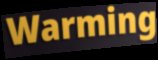
Warming